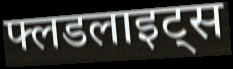
फ्लडलाइट्स